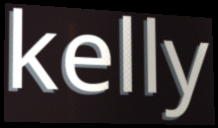
kelly